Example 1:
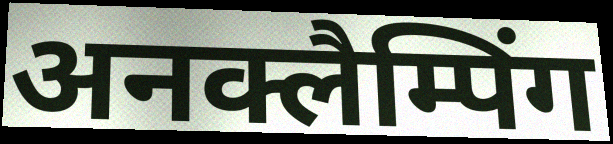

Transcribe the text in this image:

अनक्लैम्पिंग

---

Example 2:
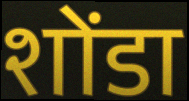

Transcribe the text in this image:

शोंडा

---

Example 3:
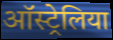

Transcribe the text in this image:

ऑस्‍ट्रेलिया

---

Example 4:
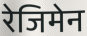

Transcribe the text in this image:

रेजिमेन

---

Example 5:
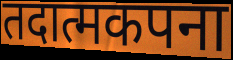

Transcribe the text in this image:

तदात्मकपना